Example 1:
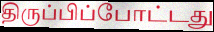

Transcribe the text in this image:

திருப்பிப்போட்டது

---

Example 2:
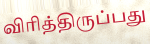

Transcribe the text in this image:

விரித்திருப்பது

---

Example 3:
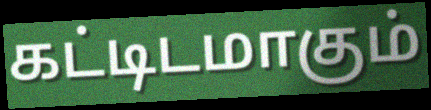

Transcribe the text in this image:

கட்டிடமாகும்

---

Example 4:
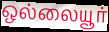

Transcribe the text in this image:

ஒல்லையூர்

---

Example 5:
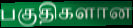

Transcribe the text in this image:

பகுதிகளான